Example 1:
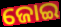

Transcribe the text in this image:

ଜୋଇ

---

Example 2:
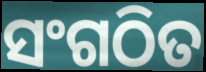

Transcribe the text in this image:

ସଂଗଠିତ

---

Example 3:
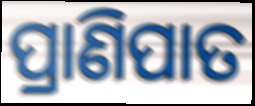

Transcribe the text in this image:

ପ୍ରାଣିପାତ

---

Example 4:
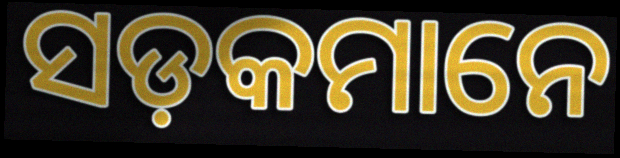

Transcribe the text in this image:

ସଡ଼କମାନେ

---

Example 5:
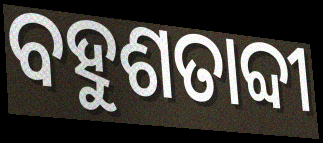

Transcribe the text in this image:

ବହୁଶତାବ୍ଦୀ